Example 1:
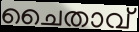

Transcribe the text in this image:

ചൈതാവ്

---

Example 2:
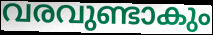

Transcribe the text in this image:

വരവുണ്ടാകും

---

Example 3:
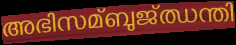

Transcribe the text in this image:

അഭിസമ്ബുജ്ഝന്തി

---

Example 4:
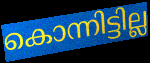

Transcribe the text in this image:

കൊന്നിട്ടില്ല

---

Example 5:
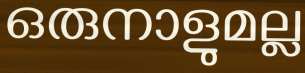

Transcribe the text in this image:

ഒരുനാളുമല്ല